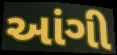
આંગી